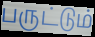
பருட்டும்